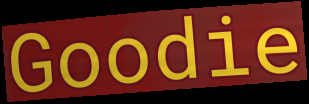
Goodie